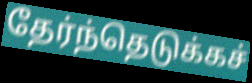
தேர்ந்தெடுக்கச்